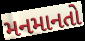
મનમાનતો